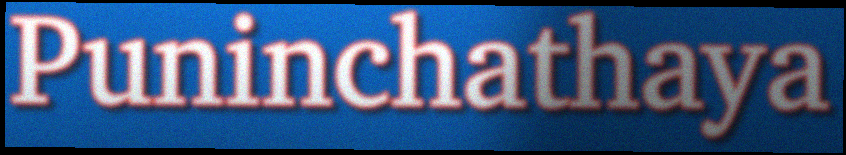
Puninchathaya